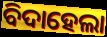
ବିଦାହେଲା